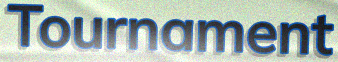
Tournament